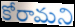
కోరామని